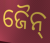
ଜୈନ୍